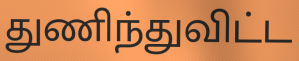
துணிந்துவிட்ட